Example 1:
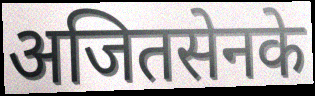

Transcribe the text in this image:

अजितसेनके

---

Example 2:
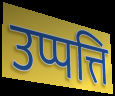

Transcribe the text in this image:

उप्पत्ति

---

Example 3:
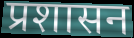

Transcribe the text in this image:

प्रशासन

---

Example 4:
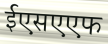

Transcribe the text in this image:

ईएसएएफ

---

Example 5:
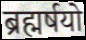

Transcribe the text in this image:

ब्रह्मर्षयो